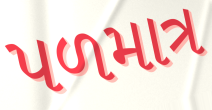
પળમાત્ર